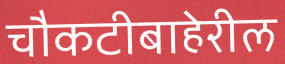
चौकटीबाहेरील